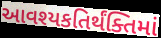
આવશ્યકતિર્થંક્તિમાં